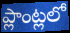
ప్లాంట్లలో